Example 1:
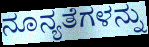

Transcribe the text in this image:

ನೂನ್ಯತೆಗಳನ್ನು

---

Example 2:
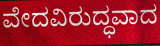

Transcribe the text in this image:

ವೇದವಿರುದ್ಧವಾದ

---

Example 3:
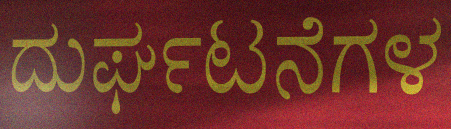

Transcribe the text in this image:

ದುರ್ಘಟನೆಗಳ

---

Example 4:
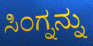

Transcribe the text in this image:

ಸಿಂಗ್ನನ್ನು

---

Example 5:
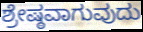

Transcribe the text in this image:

ಶ್ರೇಷ್ಠವಾಗುವುದು